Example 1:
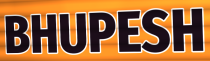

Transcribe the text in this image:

BHUPESH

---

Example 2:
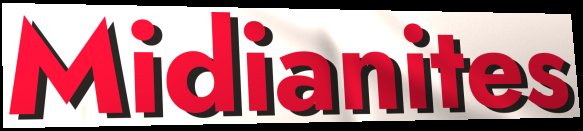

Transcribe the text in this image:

Midianites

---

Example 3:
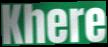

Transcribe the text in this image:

Khere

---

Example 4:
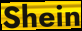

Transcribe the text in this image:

Shein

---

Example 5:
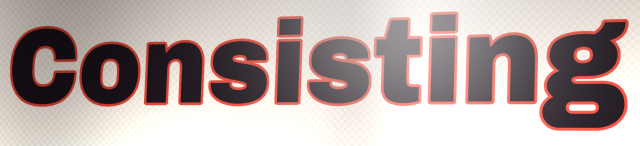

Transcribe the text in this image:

Consisting